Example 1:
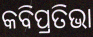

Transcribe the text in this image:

କବିପ୍ରତିଭା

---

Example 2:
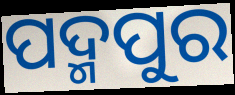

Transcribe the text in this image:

ପଦ୍ମପୁର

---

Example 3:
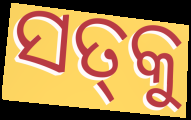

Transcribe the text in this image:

ସତ୍‌କୁ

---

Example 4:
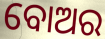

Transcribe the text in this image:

ବୋଅର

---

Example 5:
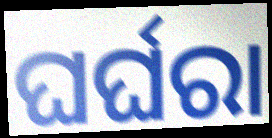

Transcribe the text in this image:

ଘର୍ଘରା